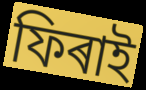
ফিৰাই